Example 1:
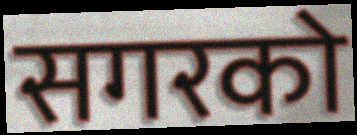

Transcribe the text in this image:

सगरको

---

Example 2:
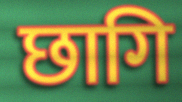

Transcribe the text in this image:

छागि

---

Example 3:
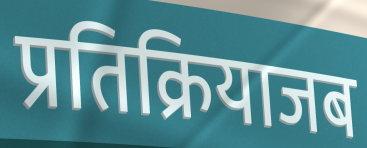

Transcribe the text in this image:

प्रतिक्रियाजब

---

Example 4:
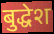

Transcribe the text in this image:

बुद्धेश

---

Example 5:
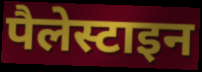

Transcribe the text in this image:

पैलेस्टाइन